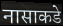
नासाकडे